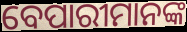
ବେପାରୀମାନଙ୍କ